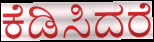
ಕೆಡಿಸಿದರೆ